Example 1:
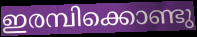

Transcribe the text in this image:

ഇരമ്പിക്കൊണ്ടു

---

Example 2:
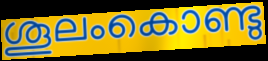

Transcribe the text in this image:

ശൂലംകൊണ്ടു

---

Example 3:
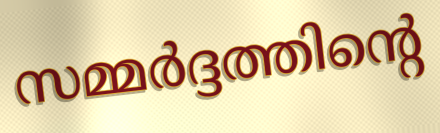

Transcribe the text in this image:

സമ്മർദ്ദത്തിന്റെ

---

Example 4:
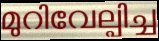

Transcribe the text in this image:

മുറിവേല്പിച്ച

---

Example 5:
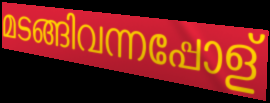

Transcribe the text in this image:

മടങ്ങിവന്നപ്പോള്